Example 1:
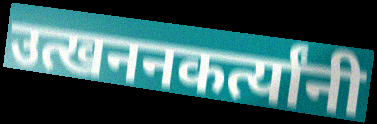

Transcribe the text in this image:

उत्खननकर्त्यांनी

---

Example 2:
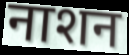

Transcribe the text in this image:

नाशन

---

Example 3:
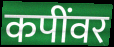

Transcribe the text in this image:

कपींवर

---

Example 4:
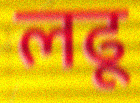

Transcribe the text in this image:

लढू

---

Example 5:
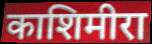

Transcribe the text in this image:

काशिमीरा